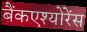
बैंकएश्योरेंस